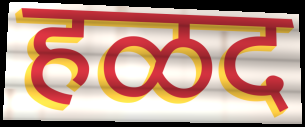
हळद